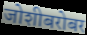
जोशीबरोबर